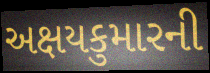
અક્ષયકુમારની